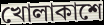
খোলাকাশে